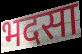
भदसा